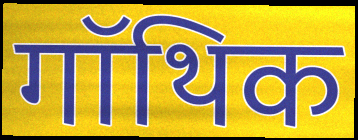
गॉथिक